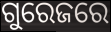
ଗୁରେଜରେ